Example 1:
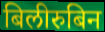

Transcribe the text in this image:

बिलीरुबिन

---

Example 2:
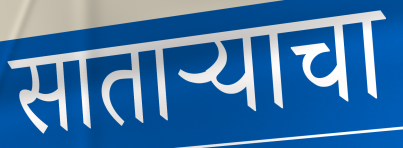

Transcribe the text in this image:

साताऱ्याचा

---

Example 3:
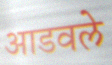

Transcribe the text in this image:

आडवले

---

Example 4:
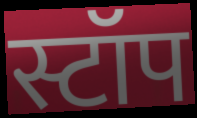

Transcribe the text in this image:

स्टॉप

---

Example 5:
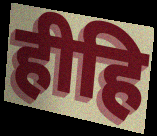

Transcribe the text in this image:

हीहि